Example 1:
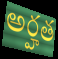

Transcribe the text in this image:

అర్హత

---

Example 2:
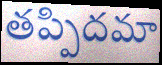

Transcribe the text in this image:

తప్పిదమా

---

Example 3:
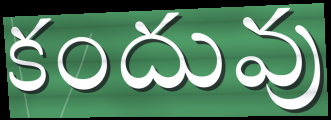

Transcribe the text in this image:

కందువు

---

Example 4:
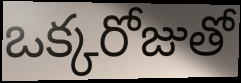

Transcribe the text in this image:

ఒక్కరోజుతో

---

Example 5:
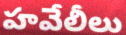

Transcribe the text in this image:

హవేలీలు